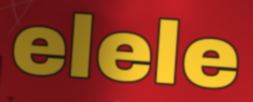
elele